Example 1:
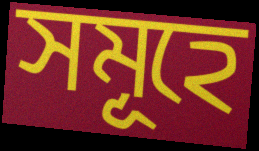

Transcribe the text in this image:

সমূহে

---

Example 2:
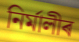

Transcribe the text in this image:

নিৰ্মালীৰ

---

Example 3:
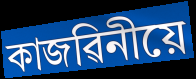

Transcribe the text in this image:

কাজৱিনীয়ে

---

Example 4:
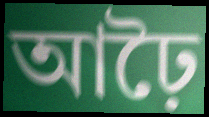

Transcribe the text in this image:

আঢ়ৈ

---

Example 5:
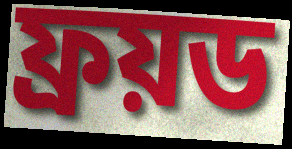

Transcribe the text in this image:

ফ্ৰয়ড